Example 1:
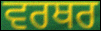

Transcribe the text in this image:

ਵਰਥਰ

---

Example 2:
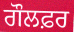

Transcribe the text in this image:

ਗੌਲਫ਼ਰ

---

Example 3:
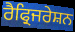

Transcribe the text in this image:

ਰੈਫ੍ਰਿਜਰੇਸ਼ਨ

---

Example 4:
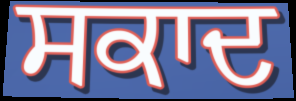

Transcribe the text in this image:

ਸਕਾਦ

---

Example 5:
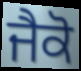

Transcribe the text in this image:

ਜੈਕੋ